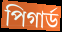
পিগার্ড